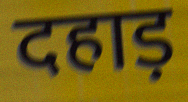
दहाड़